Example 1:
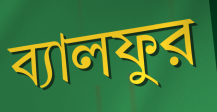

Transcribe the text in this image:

ব্যালফুর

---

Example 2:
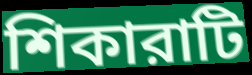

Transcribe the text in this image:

শিকারাটি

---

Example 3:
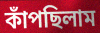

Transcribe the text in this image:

কাঁপছিলাম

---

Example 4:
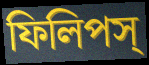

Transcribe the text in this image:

ফিলিপস্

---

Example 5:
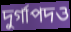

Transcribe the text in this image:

দুর্গাপদও